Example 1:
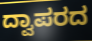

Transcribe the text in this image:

ದ್ವಾಪರದ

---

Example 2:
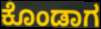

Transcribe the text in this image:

ಕೊಂಡಾಗ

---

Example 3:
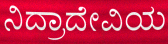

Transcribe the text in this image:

ನಿದ್ರಾದೇವಿಯ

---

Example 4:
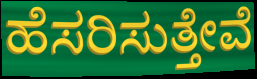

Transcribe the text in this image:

ಹೆಸರಿಸುತ್ತೇವೆ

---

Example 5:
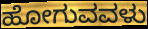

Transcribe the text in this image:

ಹೋಗುವವಳು